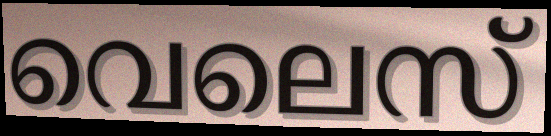
വെലെസ്